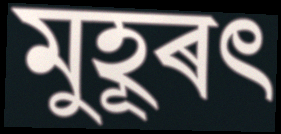
মুহূৰৎ